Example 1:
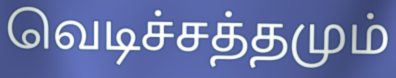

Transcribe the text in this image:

வெடிச்சத்தமும்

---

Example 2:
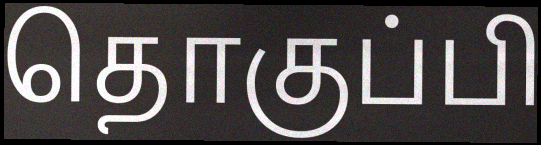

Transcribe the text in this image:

தொகுப்பி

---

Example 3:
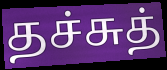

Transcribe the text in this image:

தச்சுத்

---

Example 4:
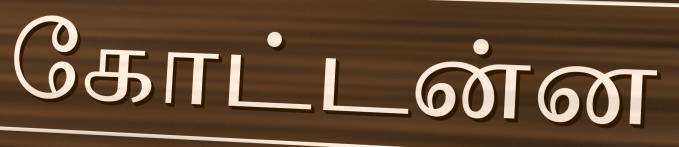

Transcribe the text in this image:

கோட்டன்ன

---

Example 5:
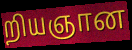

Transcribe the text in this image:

றியஞான